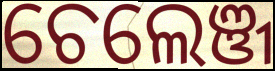
ଚେଲେଞ୍ଜ